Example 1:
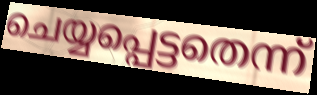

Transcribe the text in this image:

ചെയ്യപ്പെട്ടതെന്ന്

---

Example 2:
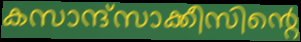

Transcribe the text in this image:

കസാന്ദ്സാക്കീസിന്റെ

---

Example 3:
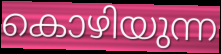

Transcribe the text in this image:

കൊഴിയുന്ന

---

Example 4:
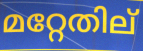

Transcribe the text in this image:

മറ്റേതില്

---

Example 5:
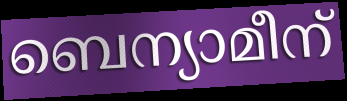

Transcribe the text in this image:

ബെന്യാമീന്